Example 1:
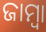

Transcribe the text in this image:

ଜାମ୍ବା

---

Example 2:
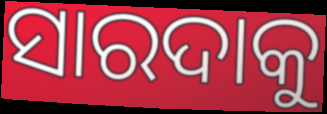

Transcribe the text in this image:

ସାରଦାକୁ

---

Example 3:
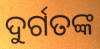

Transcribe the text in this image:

ଦୁର୍ଗତଙ୍କ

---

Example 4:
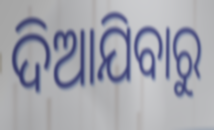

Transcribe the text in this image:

ଦିଆଯିବାରୁ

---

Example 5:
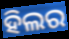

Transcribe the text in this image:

ହିଲର